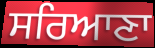
ਸਰਿਆਣਾ